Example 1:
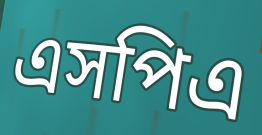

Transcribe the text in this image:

এসপিএ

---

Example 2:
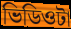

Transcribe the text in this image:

ভিডিওটা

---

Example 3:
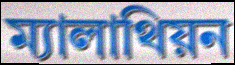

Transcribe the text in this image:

ম্যালাথিয়ন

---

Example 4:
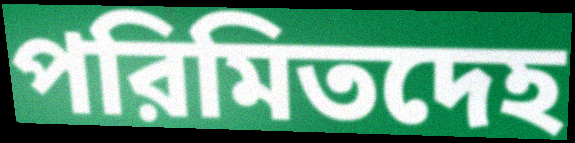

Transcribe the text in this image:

পরিমিতদেহ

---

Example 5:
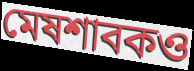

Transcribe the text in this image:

মেষশাবকও